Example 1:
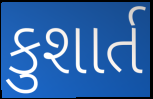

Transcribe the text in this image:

કુશાર્ત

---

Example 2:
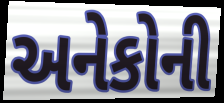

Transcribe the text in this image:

અનેકોની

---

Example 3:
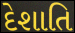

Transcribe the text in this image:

દેશાતિ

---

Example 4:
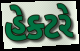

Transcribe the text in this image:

હેક્ટરે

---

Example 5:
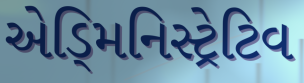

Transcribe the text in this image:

એડ્મિનિસ્ટ્રેટિવ